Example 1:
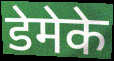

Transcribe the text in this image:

डेमेके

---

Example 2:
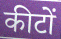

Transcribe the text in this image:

कीटों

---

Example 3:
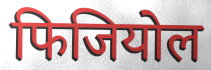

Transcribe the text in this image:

फिजियोल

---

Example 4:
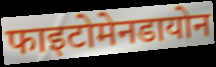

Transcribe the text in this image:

फाइटोमेनडायोन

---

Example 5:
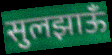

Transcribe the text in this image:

सुलझाऊँ